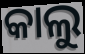
କାଲୁ